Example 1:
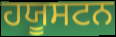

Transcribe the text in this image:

ਹਯੂਸਟਨ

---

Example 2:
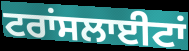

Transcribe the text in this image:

ਟਰਾਂਸਲਾਈਟਾਂ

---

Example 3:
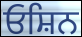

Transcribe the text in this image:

ਓਸ਼ਿਨ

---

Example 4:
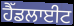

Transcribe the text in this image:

ਹੈੱਡਲਾਈਟ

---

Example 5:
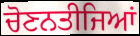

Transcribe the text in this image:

ਚੋਣਨਤੀਜਿਆਂ